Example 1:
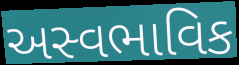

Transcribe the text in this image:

અસ્વભાવિક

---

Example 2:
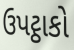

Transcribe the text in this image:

ઉપટ્ઠાકો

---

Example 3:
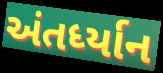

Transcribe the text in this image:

અંતર્ધ્યાન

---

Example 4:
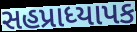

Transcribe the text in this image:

સહપ્રાધ્યાપક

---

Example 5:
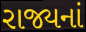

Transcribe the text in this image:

રાજ્યનાં